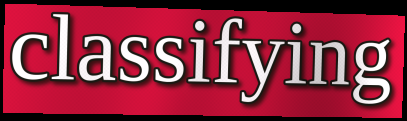
classifying